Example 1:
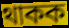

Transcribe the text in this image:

থাকক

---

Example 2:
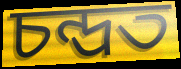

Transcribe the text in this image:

চন্দ্ৰত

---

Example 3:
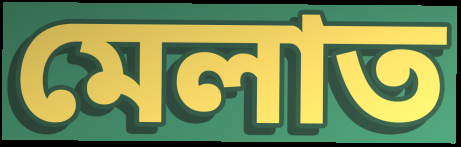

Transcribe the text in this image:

মেলাত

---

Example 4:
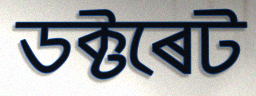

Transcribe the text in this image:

ডক্টৰেট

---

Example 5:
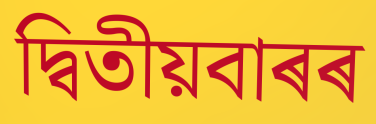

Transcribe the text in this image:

দ্বিতীয়বাৰৰ